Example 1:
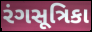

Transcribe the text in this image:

રંગસૂત્રિકા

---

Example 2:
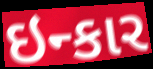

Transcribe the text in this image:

ઇન્કાર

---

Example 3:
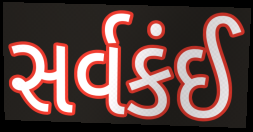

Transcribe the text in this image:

સર્વકંઈ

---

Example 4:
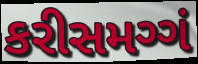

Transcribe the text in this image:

કરીસમગ્ગં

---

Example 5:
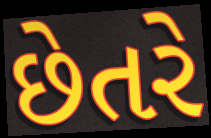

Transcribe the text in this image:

છેતરે